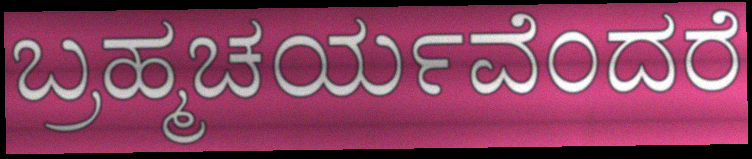
ಬ್ರಹ್ಮಚರ್ಯವೆಂದರೆ